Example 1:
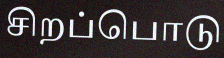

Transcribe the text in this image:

சிறப்பொடு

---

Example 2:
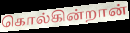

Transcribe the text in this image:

கொல்கின்றான்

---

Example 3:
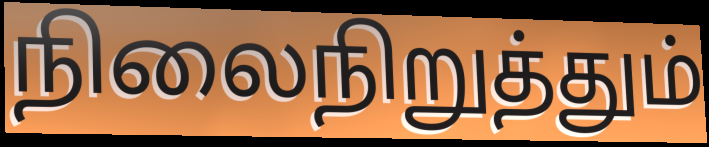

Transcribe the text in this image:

நிலைநிறுத்தும்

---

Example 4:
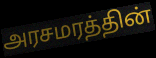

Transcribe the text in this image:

அரசமரத்தின்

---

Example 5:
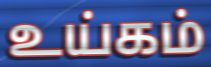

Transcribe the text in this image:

உய்கம்